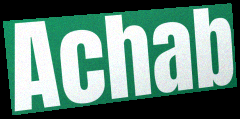
Achab